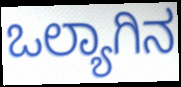
ಒಲ್ಯಾಗಿನ